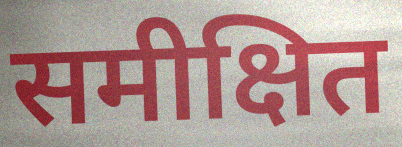
समीक्षित